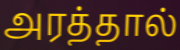
அரத்தால்